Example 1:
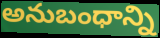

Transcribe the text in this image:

అనుబంధాన్ని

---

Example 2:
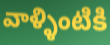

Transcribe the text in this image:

వాళ్ళింటికి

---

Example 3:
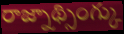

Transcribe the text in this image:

రాజ్నాథ్సింగ్కు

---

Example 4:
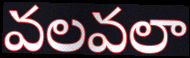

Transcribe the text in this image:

వలవలా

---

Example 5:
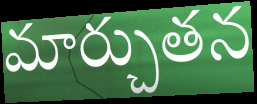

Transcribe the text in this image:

మార్చుతన